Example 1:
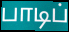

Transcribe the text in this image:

பாடிப்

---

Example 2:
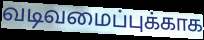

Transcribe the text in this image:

வடிவமைப்புக்காக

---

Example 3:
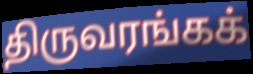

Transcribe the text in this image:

திருவரங்கக்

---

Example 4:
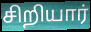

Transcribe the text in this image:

சிறியார்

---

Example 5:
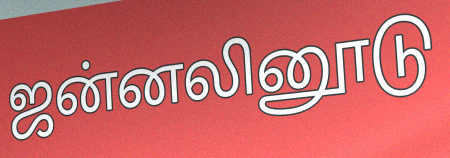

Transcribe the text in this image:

ஜன்னலினூடு